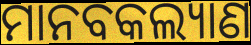
ମାନବକଲ୍ୟାଣ